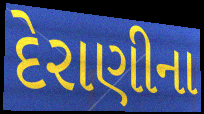
દેરાણીના